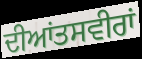
ਦੀਆਂਤਸਵੀਰਾਂ